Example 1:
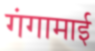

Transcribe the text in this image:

गंगामाई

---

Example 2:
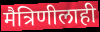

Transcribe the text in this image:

मैत्रिणीलाही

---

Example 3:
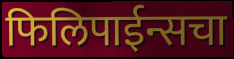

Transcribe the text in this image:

फिलिपाईन्सचा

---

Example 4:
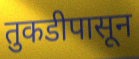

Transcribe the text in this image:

तुकडीपासून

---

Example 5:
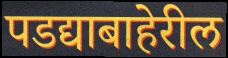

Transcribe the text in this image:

पडद्याबाहेरील